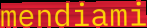
mendiami